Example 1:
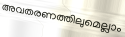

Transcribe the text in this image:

അവതരണത്തിലുമെല്ലാം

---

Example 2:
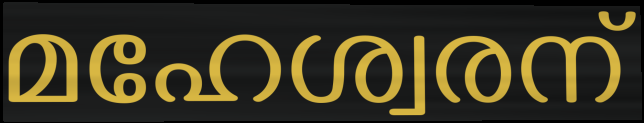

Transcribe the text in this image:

മഹേശ്വരന്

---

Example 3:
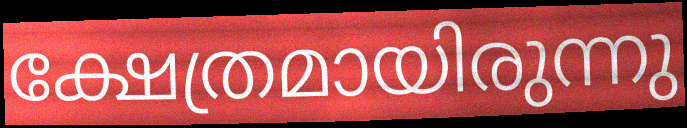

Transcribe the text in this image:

ക്ഷേത്രമായിരുന്നു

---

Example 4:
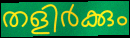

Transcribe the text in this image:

തളിർക്കും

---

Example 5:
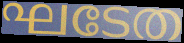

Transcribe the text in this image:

ഘടേത